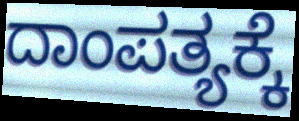
ದಾಂಪತ್ಯಕ್ಕೆ